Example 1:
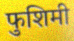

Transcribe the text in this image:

फुशिमी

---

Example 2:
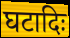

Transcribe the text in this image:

घटादिः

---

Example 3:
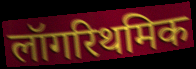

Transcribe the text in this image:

लॉगरिथमिक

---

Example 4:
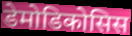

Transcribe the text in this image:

डेमोडिकोसिस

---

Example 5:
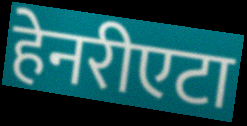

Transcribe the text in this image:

हेनरीएटा